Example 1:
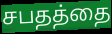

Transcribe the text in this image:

சபதத்தை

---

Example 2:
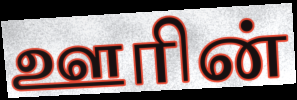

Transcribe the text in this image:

ஊரின்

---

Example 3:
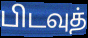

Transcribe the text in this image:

பிடவுத்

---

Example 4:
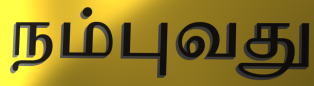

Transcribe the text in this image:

நம்புவது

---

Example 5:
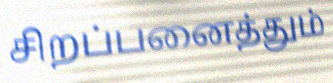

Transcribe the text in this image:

சிறப்பனைத்தும்